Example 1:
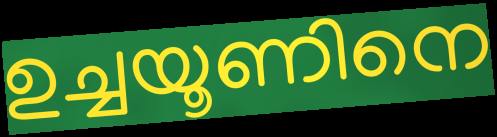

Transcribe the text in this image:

ഉച്ചയൂണിനെ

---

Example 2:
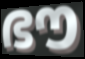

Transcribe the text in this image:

ഭൗ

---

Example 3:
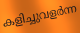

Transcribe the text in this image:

കളിച്ചുവളർന്ന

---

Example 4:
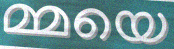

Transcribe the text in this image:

മ്മയെ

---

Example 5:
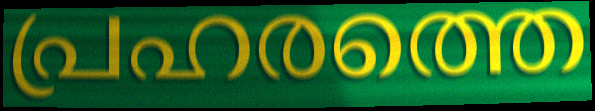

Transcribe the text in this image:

പ്രഹരത്തെ